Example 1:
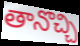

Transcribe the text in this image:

తానొచ్చి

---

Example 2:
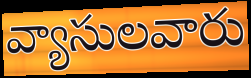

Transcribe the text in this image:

వ్యాసులవారు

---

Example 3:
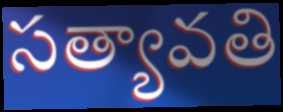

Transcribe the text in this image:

సత్యావతి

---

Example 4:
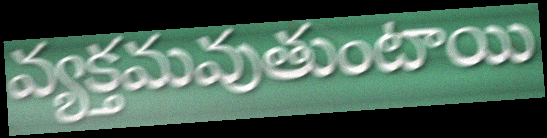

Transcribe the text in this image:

వ్యక్తమవుతుంటాయి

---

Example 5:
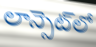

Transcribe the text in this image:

లాన్సెట్‌లో